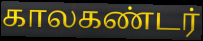
காலகண்டர்